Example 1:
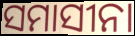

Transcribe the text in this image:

ସମାସୀନା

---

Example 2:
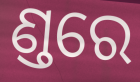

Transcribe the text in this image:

ଣ୍ଡରେ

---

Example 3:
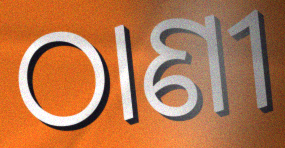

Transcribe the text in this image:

ଠାଣୀ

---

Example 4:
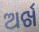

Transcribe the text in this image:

ଅର୍ଖ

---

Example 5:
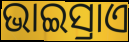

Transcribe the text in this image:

ଭାଇସ୍ରାଏ